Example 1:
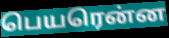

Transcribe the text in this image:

பெயரென்ன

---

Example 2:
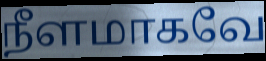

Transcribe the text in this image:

நீளமாகவே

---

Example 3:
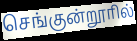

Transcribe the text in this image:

செங்குன்றூரில்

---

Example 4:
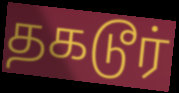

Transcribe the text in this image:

தகடூர்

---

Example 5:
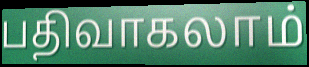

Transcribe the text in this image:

பதிவாகலாம்